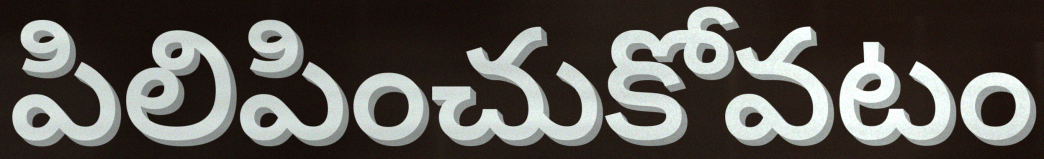
పిలిపించుకోవటం